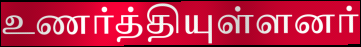
உணர்த்தியுள்ளனர்